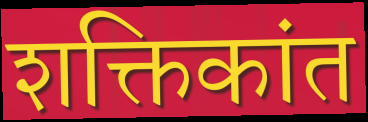
शक्तिकांत